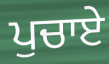
ਪੁਚਾਏ